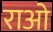
राओ